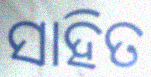
ସାହିତ